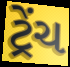
ટ્રેંચ